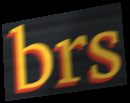
brs